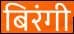
बिरंगी